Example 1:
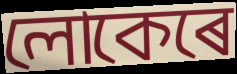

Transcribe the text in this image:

লোকেৰে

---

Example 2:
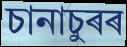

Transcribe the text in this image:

চানাচুৰৰ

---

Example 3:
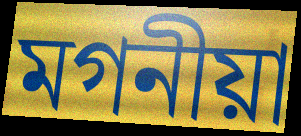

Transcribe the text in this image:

মগনীয়া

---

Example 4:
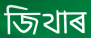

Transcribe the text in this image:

জিথাৰ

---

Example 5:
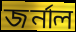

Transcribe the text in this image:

জৰ্নাল